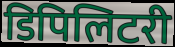
डिपिलिटरी